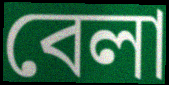
বেলা